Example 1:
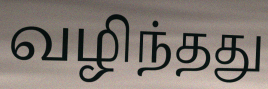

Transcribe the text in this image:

வழிந்தது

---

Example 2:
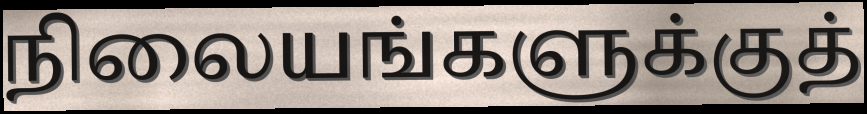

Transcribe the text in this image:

நிலையங்களுக்குத்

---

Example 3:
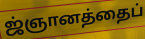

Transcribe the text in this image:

ஜ்ஞானத்தைப்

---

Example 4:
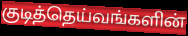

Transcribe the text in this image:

குடித்தெய்வங்களின்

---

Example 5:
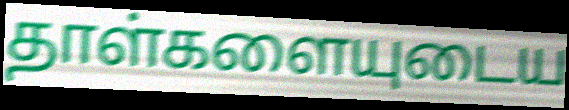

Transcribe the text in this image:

தாள்களையுடைய